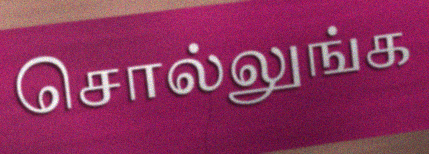
சொல்லுங்க